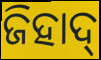
ଜିହାଦ୍